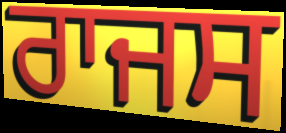
ਰਾਜਸ